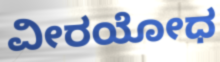
ವೀರಯೋಧ